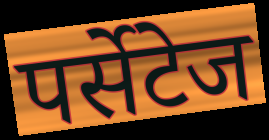
पर्सेटेज